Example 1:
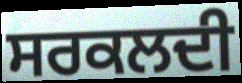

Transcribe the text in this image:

ਸਰਕਲਦੀ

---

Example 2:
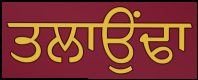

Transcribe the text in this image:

ਤਲਾਉਂਢਾ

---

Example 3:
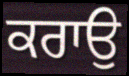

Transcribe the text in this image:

ਕਰਾਉ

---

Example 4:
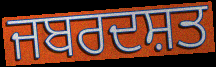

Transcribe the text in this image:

ਜਬਰਦਸ਼ਤ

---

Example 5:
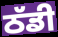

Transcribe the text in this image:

ਠੱਡੀ